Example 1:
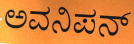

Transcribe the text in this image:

ಅವನಿಪನ್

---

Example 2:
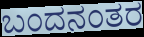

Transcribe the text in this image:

ಬಂದನಂತರ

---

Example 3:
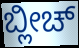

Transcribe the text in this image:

ಬ್ಲೀಚ್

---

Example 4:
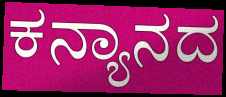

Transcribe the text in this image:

ಕನ್ಯಾನದ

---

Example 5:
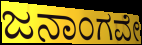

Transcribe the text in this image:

ಜನಾಂಗವೇ